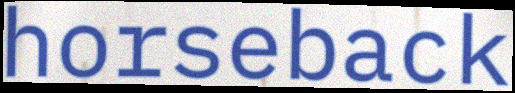
horseback